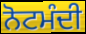
ਨੋਟਮੰਦੀ